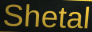
Shetal